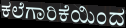
ಕಲೆಗಾರಿಕೆಯಿಂದ